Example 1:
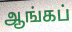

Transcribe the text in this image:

ஆங்கப்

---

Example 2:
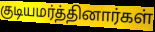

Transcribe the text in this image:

குடியமர்த்தினார்கள்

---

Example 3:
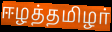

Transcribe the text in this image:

ஈழத்தமிழர்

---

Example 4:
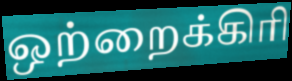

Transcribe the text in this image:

ஒற்றைக்கிரி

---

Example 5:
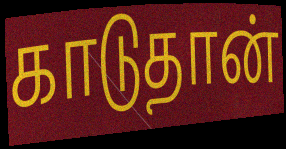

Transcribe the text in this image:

காடுதான்